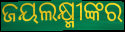
ଜୟଲକ୍ଷ୍ମୀଙ୍କର